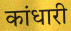
कांधारी